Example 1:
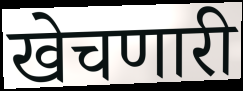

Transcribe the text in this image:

खेचणारी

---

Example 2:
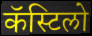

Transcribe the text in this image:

कॅस्टिलो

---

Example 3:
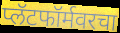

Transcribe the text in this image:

प्लॅटफॉर्मवरचा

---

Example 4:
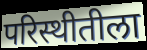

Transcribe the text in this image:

परिस्थीतीला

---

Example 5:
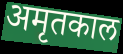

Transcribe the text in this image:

अमृतकाल